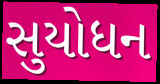
સુયોધન